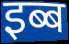
इब्ब